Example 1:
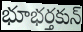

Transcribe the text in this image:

భూభర్తకున్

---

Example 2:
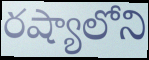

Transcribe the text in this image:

రష్యాలోని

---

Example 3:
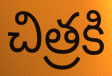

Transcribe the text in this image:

చిత్రకి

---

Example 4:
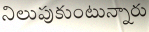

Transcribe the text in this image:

నిలుపుకుంటున్నారు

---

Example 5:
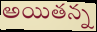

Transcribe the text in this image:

అయితన్న